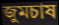
জুমচাষ